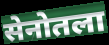
सेनोतला